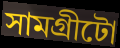
সামগ্ৰীটো